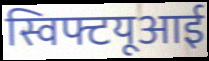
स्विफ्टयूआई